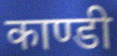
काण्डी